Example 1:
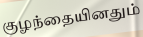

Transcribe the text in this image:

குழந்தையினதும்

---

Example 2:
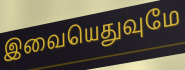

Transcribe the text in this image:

இவையெதுவுமே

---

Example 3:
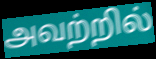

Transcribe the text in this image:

அவற்றில்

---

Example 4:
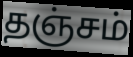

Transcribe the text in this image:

தஞ்சம்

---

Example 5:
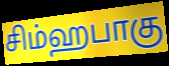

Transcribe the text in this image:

சிம்ஹபாகு